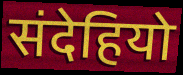
संदेहियो